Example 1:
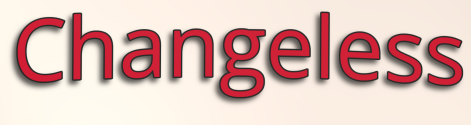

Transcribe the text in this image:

Changeless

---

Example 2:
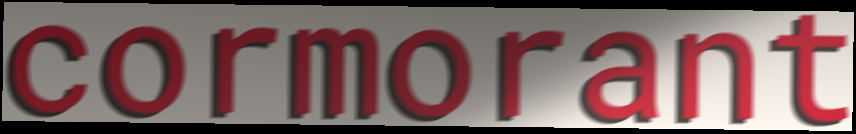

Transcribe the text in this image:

cormorant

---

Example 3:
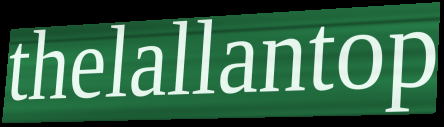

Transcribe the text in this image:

thelallantop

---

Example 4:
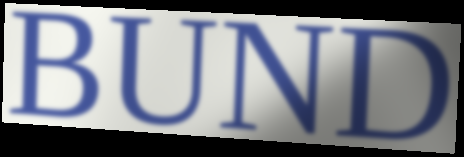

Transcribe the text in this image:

BUND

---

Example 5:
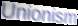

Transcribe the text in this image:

Unionism